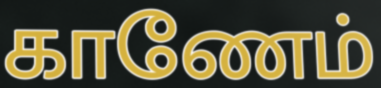
காணேம்